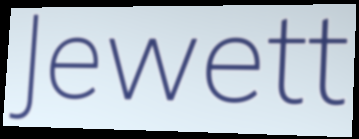
Jewett